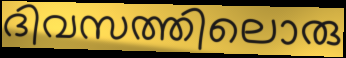
ദിവസത്തിലൊരു